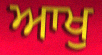
ਆਖੁ